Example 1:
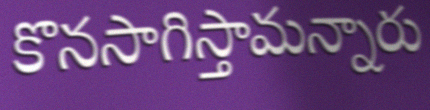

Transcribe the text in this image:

కొనసాగిస్తామన్నారు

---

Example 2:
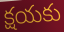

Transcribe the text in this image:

క్షయకు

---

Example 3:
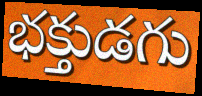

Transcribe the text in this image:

భక్తుడగు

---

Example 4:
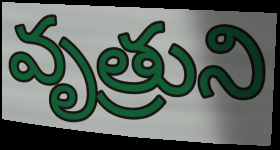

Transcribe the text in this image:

వృత్రుని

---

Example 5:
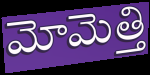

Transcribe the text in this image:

మోమెత్తి